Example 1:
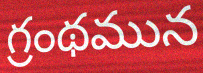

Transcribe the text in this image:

గ్రంథమున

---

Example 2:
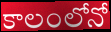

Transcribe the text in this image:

కాలంలోనో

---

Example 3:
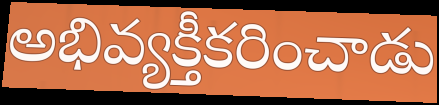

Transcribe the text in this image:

అభివ్యక్తీకరించాడు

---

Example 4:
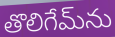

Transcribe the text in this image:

తొలిగేమ్‌ను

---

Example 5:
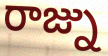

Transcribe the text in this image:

రాజ్ను